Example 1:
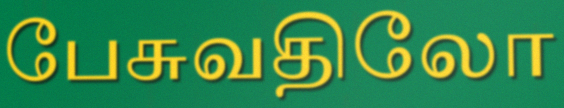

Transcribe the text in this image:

பேசுவதிலோ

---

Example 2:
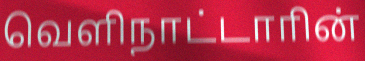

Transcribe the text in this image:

வெளிநாட்டாரின்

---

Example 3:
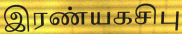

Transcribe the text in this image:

இரண்யகசிபு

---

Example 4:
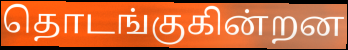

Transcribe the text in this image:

தொடங்குகின்றன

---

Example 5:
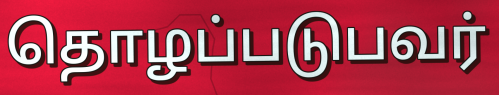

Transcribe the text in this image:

தொழப்படுபவர்